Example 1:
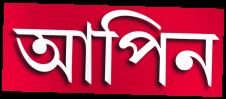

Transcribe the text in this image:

আপিন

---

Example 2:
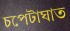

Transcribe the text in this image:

চপেটাঘাত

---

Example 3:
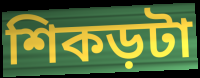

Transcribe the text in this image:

শিকড়টা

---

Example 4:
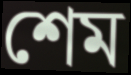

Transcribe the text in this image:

শেম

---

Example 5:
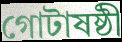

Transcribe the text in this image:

গোটাষষ্ঠী